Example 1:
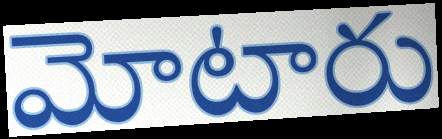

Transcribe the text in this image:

మోటారు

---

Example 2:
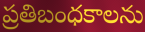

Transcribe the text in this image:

ప్రతిబంధకాలను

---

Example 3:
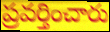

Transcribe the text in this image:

ప్రవర్తించారు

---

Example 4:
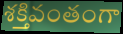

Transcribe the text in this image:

శక్తివంతంగా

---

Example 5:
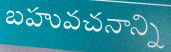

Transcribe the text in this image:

బహువచనాన్ని